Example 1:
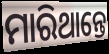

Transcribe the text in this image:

ମାରିଥାନ୍ତେ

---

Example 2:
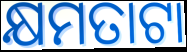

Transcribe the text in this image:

କ୍ଷମତାଟା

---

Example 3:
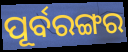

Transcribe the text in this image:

ପୂର୍ବରଙ୍ଗର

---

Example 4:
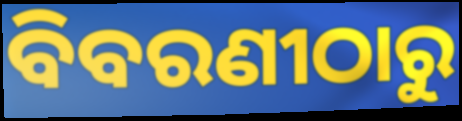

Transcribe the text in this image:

ବିବରଣୀଠାରୁ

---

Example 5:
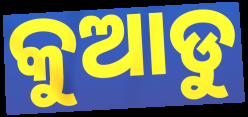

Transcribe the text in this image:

କୁଆଡୁ